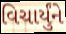
વિચાર્યુંને